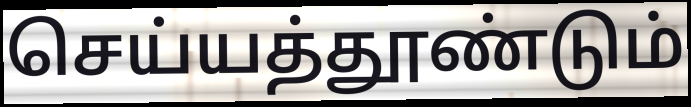
செய்யத்தூண்டும்